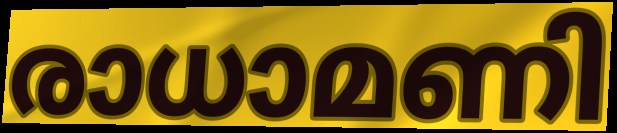
രാധാമണി